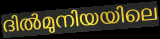
ദിൽമുനിയയിലെ